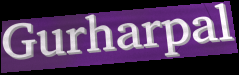
Gurharpal